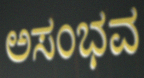
ಅಸಂಭವ